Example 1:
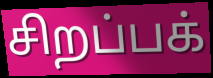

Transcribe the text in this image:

சிறப்பக்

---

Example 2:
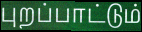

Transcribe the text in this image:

புறப்பாட்டும்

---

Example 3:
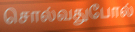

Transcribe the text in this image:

சொல்வதுபோல்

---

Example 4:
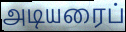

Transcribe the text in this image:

அடியரைப்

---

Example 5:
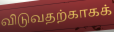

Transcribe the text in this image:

விடுவதற்காகக்